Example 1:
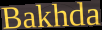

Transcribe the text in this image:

Bakhda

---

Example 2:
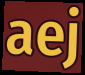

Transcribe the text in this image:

aej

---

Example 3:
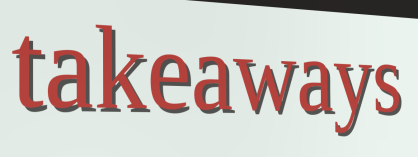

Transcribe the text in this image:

takeaways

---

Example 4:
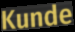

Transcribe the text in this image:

Kunde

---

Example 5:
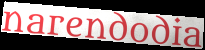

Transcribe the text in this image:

narendodia